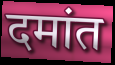
दमांत